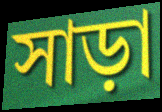
সাড়া